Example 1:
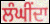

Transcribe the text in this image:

ਲੰਘੀਂਦਾ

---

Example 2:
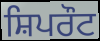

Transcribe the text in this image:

ਸ਼ਿਪਰੌਟ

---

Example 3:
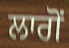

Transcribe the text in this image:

ਲਾਗੋਂ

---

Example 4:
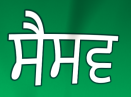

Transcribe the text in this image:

ਸੈਸਵ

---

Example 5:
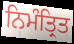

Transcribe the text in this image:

ਨਿਮੰਤ੍ਰਿਤ